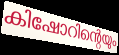
കിഷോറിന്റെയും